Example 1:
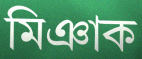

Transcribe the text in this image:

মিঞাক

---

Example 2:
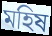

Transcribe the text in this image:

মহিষ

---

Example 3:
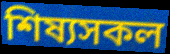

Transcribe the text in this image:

শিষ্যসকল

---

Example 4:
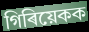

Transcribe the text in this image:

গিৰিয়েকক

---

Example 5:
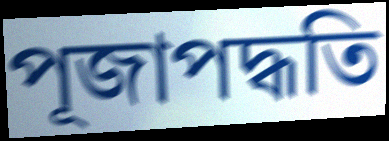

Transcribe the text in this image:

পূজাপদ্ধতি